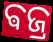
ଵଜ୍ର